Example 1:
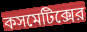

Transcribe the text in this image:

কসমেটিক্সের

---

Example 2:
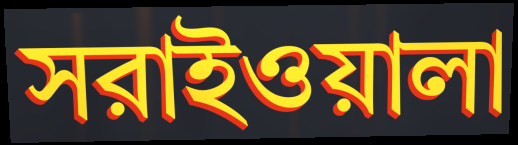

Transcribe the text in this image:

সরাইওয়ালা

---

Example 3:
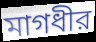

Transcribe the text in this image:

মাগধীর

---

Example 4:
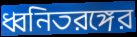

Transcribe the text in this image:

ধ্বনিতরঙ্গের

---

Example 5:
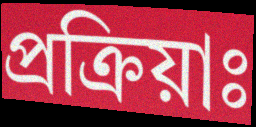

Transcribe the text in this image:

প্রক্রিয়াঃ